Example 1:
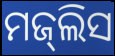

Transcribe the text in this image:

ମଜ୍‌ଲିସ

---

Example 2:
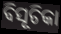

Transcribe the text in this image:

ବିସୂଚିକା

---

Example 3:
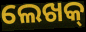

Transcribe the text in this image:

ଲେଖକ୍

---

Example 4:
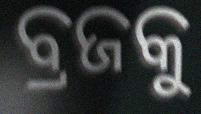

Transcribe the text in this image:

ବ୍ରଜକୁ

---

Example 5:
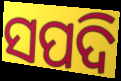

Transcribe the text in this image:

ସପଦି